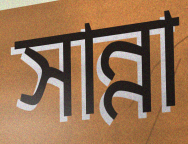
সান্না